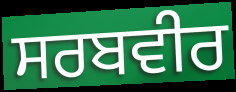
ਸਰਬਵੀਰ